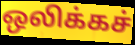
ஒலிக்கச்